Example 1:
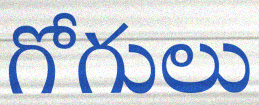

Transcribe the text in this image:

గోగులు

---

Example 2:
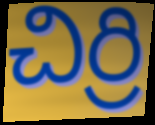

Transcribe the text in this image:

చిర్రి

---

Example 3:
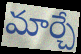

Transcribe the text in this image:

మార్చే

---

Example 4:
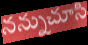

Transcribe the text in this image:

నన్నుచూసి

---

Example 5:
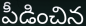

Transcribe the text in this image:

పీడించిన